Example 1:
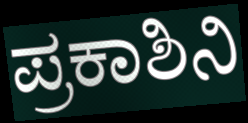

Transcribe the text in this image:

ಪ್ರಕಾಶಿನಿ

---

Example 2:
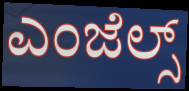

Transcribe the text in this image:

ಎಂಜೆಲ್ಸ್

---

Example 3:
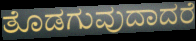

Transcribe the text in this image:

ತೊಡಗುವುದಾದರೆ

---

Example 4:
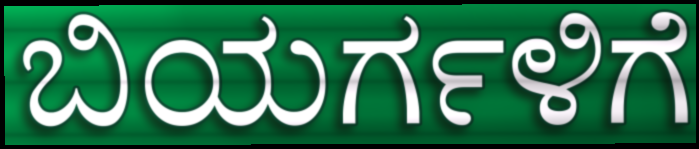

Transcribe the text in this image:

ಬಿಯರ್ಗಳಿಗೆ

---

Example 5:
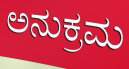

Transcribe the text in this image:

ಅನುಕ್ರಮ